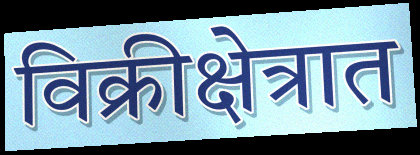
विक्रीक्षेत्रात